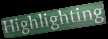
Highlighting